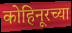
कोहिनूरच्या